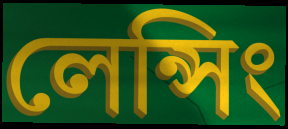
লেন্সিং